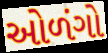
ઓળંગો